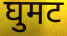
घुमट